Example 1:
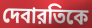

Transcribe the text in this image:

দেবারতিকে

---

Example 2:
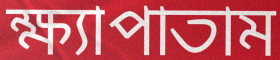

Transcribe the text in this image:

ক্ষ্যাপাতাম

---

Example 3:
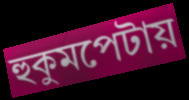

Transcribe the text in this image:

হুকুমপেটায়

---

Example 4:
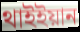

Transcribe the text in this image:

থাইইয়ান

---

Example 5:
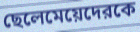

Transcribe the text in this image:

ছেলেমেয়েদেরকে